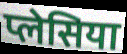
प्लेसिया